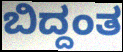
ಬಿದ್ದಂತ